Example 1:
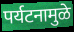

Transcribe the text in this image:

पर्यटनामुळे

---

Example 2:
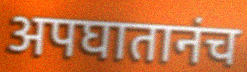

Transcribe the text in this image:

अपघातानंच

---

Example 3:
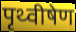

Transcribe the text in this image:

पृथ्वीषेण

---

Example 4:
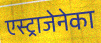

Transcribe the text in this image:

एस्ट्राजेनेका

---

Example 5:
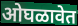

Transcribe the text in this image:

ओघळावेत